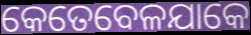
କେତେବେଳଯାକେ